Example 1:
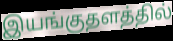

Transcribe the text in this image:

இயங்குதளத்தில்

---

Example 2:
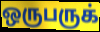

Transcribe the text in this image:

ஒருபருக்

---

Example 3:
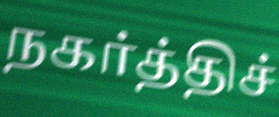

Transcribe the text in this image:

நகர்த்திச்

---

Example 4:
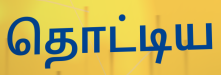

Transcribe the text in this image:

தொட்டிய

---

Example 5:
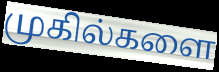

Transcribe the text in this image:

முகில்களை